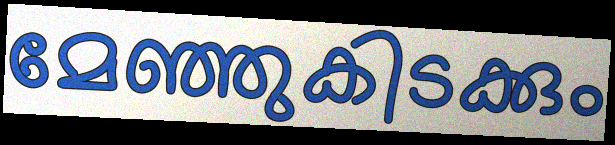
മേഞ്ഞുകിടക്കും